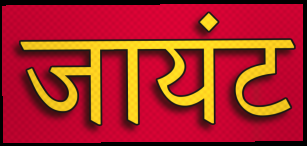
जायंट